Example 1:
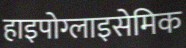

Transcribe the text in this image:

हाइपोग्लाइसेमिक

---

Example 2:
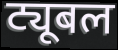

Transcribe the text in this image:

ट्यूबल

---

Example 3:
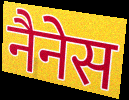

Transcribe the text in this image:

नैनेस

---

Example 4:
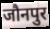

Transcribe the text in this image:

जौनपुर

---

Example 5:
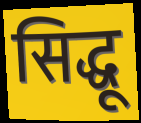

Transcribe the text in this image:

सिद्धू